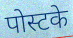
पोस्टके